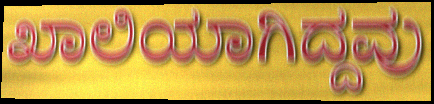
ಖಾಲಿಯಾಗಿದ್ದವು